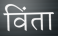
विंता